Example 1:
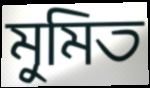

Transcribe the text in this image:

মুমিত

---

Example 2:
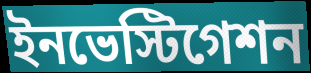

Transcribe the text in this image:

ইনভেস্টিগেশন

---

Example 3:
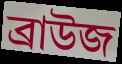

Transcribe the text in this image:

ব্রাউজ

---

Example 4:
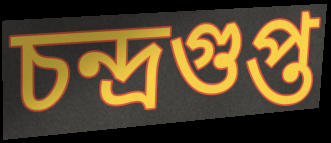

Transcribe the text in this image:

চন্দ্রগুপ্ত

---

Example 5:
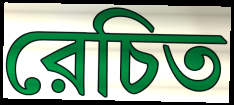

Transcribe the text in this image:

রেচিত